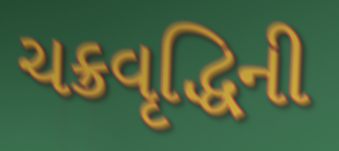
ચક્રવૃદ્ધિની